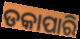
ଡକାପାରି